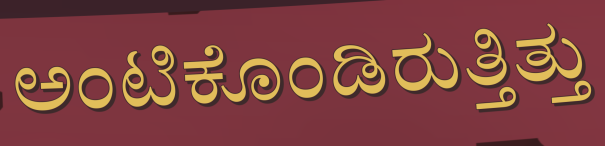
ಅಂಟಿಕೊಂಡಿರುತ್ತಿತ್ತು